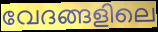
വേദങ്ങളിലെ